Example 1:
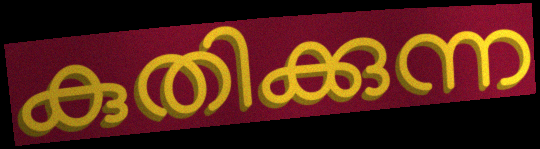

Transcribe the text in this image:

കുതിക്കുന്ന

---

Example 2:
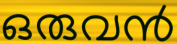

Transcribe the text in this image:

ഒരുവൻ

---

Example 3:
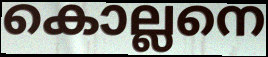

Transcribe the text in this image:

കൊല്ലനെ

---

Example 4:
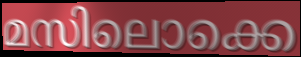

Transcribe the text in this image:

മസിലൊക്കെ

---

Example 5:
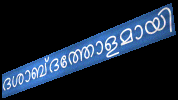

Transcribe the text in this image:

ദശാബ്ദത്തോളമായി